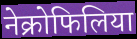
नेक्रोफिलिया